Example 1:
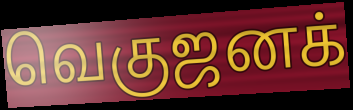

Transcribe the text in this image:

வெகுஜனக்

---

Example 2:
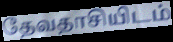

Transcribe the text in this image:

தேவதாசியிடம்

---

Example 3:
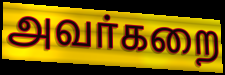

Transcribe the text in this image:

அவர்கறை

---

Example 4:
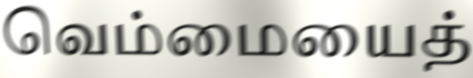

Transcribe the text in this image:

வெம்மையைத்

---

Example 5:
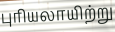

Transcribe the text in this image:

புரியலாயிற்று